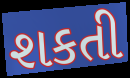
શકતી